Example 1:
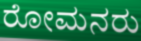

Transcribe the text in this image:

ರೋಮನರು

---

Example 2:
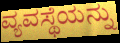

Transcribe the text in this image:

ವ್ಯವಸ್ಥೆಯನ್ನು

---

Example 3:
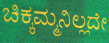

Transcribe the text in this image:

ಚಿಕ್ಕಮ್ಮನಿಲ್ಲದೇ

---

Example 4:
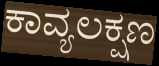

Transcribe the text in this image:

ಕಾವ್ಯಲಕ್ಷಣ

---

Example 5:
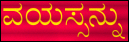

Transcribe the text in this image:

ವಯಸ್ಸನ್ನು